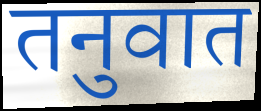
तनुवात